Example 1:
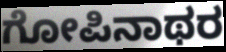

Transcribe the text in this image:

ಗೋಪಿನಾಥರ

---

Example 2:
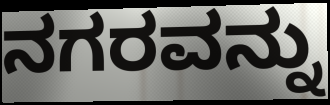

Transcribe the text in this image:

ನಗರವನ್ನು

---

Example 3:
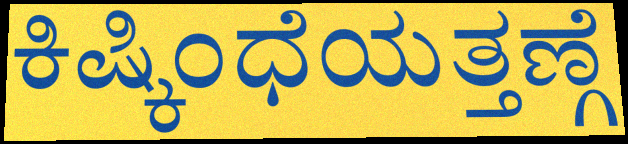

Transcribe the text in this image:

ಕಿಷ್ಕಿಂಧೆಯತ್ತಣ್ಗೆ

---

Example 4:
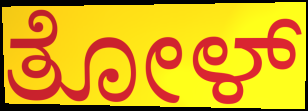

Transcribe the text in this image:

ತೋಳ್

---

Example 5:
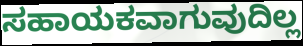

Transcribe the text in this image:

ಸಹಾಯಕವಾಗುವುದಿಲ್ಲ